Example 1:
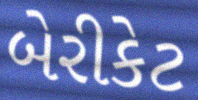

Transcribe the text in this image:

બેરીકેટ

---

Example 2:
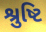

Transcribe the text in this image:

શ્રુષ્ટિ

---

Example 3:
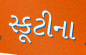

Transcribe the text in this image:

સ્કૂટીના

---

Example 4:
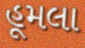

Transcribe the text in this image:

હૂમલા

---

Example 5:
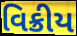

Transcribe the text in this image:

વિક્રીય